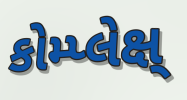
કોમ્પ્લેક્ષ્